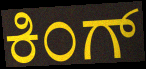
ಕಿಂಗ್